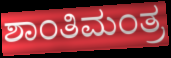
ಶಾಂತಿಮಂತ್ರ